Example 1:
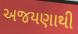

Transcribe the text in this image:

અજયણાથી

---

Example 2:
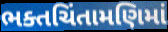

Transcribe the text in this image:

ભક્તચિંતામણિમાં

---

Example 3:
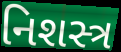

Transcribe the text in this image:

નિશસ્ત્ર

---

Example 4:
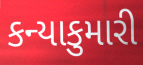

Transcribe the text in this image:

કન્યાકુમારી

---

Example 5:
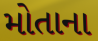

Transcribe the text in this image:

મોતાના